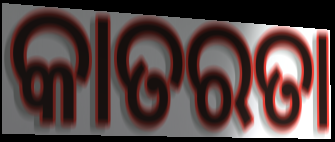
କାତରତା